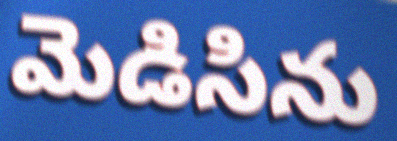
మెడిసిను